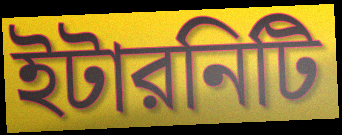
ইটারনিটি